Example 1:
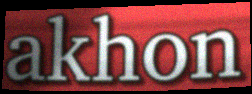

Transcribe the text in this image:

akhon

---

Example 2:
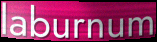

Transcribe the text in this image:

laburnum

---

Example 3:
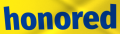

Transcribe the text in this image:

honored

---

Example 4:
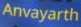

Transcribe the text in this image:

Anvayarth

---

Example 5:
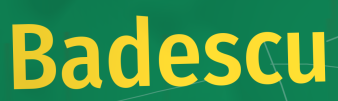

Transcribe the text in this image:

Badescu